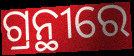
ଗ୍ରନ୍ଥୀରେ